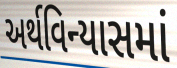
અર્થવિન્યાસમાં